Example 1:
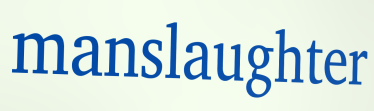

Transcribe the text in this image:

manslaughter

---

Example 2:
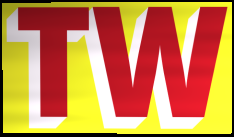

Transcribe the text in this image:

TW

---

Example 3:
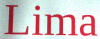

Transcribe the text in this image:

Lima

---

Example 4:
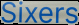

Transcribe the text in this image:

Sixers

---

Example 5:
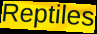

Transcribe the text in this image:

Reptiles